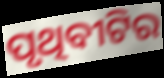
ପୃଥିବୀଟିର